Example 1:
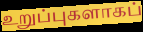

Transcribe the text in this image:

உறுப்புகளாகப்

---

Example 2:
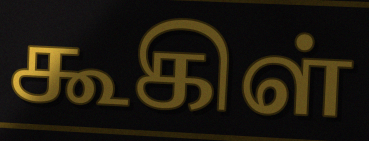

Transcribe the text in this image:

கூகிள்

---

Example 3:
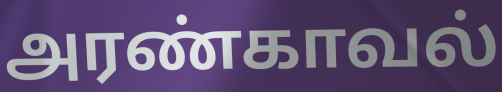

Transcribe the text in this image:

அரண்காவல்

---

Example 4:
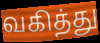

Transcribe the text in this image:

வகித்து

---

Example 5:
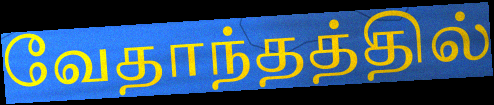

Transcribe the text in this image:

வேதாந்தத்தில்